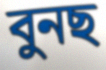
বুনছ